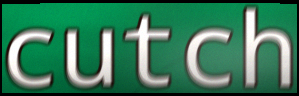
cutch